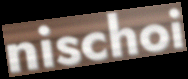
nischoi